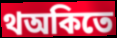
থঅকিতে